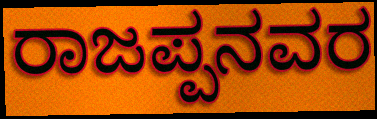
ರಾಜಪ್ಪನವರ